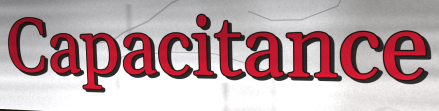
Capacitance